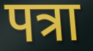
पत्रा